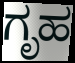
ಗೃಹ